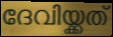
ദേവിയ്ക്കത്